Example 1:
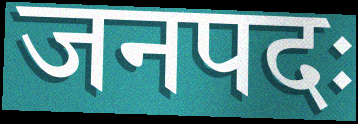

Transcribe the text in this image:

जनपदः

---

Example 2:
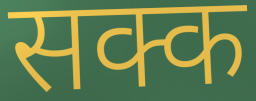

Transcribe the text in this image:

सक्क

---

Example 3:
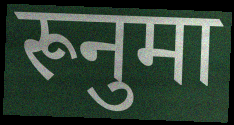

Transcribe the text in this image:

रूनुमा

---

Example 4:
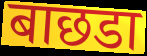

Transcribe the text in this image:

बाछडा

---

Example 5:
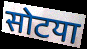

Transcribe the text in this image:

सोटया